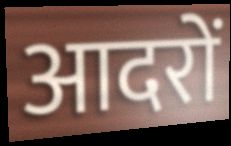
आदरों